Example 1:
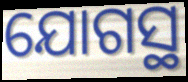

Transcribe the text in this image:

ଯୋଗସ୍ଥ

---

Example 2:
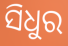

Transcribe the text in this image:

ସିଧୁର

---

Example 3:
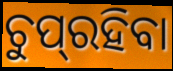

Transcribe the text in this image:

ଚୁପ୍‌ରହିବା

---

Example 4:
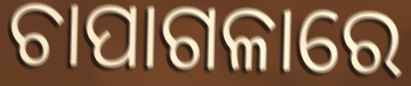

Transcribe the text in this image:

ଚାପାଗଳାରେ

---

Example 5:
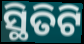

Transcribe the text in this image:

ସ୍ଥିତିଟି